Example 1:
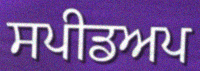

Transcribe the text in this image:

ਸਪੀਡਅਪ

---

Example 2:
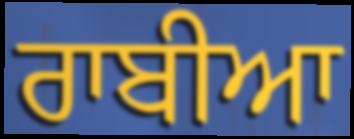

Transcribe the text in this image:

ਰਾਬੀਆ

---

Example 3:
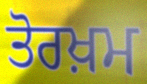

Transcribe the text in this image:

ਤੋਰਖ਼ਮ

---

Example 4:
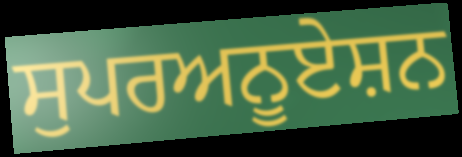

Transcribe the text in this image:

ਸੁਪਰਅਨੂਏਸ਼ਨ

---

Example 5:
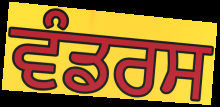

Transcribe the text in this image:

ਵੰਡਰਸ